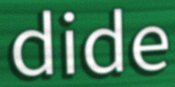
dide